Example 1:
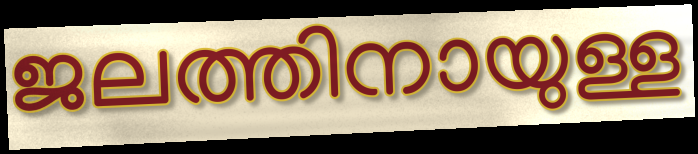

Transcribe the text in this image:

ജലത്തിനായുള്ള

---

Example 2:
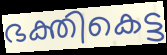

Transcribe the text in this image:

ഭക്തികെട്ട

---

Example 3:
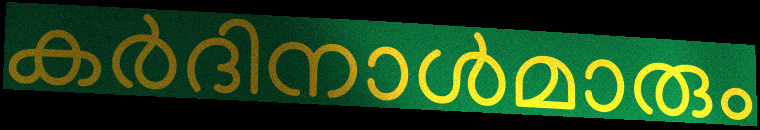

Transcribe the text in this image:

കർദിനാൾമാരും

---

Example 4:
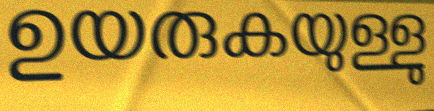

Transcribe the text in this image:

ഉയരുകയുള്ളു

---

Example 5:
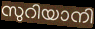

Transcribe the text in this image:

സുറിയാനി